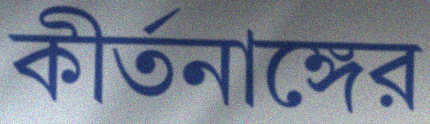
কীর্তনাঙ্গের